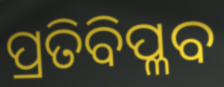
ପ୍ରତିବିପ୍ଳବ